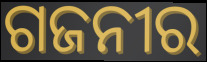
ଗଜନୀର